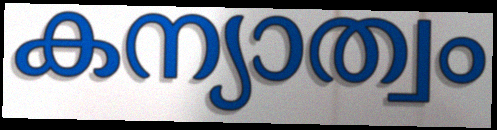
കന്യാത്വം